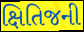
ક્ષિતિજની